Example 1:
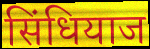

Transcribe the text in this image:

सिंधियाज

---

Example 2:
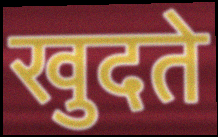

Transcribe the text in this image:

खुदते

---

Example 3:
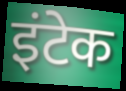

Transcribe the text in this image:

इंटेक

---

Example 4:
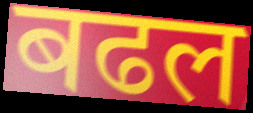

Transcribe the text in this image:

बढल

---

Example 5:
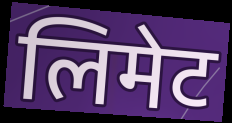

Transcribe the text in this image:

लिमेट